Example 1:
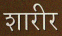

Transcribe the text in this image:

शारीर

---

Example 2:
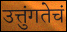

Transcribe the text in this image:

उत्तुंगतेचं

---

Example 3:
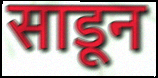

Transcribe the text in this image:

साडून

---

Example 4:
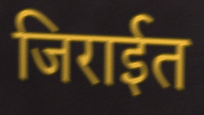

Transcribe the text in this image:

जिराईत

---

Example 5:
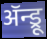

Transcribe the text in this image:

ॲन्ड्रू